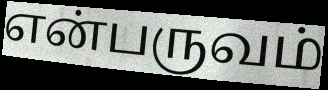
என்பருவம்